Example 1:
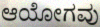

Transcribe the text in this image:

ಆಯೋಗವು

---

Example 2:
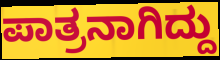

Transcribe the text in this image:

ಪಾತ್ರನಾಗಿದ್ದು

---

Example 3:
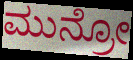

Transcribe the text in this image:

ಮುನ್ರೋ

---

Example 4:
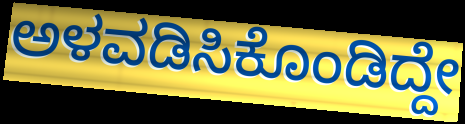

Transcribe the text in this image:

ಅಳವಡಿಸಿಕೊಂಡಿದ್ದೇ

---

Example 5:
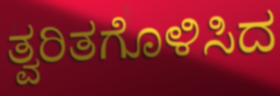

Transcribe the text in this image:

ತ್ವರಿತಗೊಳಿಸಿದ